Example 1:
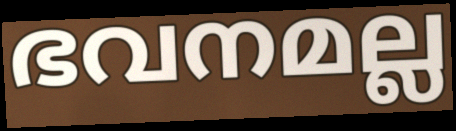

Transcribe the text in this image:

ഭവനമല്ല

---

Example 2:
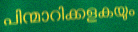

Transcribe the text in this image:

പിന്മാറിക്കളകയും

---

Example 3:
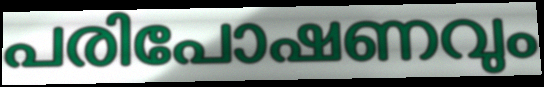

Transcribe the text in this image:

പരിപോഷണവും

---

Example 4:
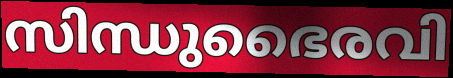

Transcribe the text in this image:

സിന്ധുഭൈരവി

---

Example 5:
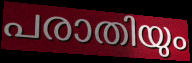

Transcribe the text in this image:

പരാതിയും